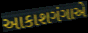
આકાશગંગાએ